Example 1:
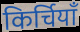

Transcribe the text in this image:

किर्चियाँ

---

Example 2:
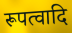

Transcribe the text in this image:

रूपत्वादि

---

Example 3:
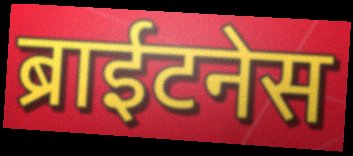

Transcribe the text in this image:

ब्राईटनेस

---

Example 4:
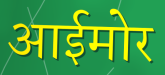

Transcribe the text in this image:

आईमोर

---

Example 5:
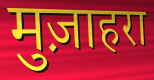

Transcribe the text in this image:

मुज़ाहरा